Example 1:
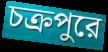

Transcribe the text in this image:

চক্রপুরে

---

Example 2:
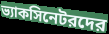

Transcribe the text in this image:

ভ্যাকসিনেটরদের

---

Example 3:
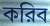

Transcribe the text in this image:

করিব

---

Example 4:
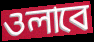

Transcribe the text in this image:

ওলাবে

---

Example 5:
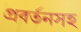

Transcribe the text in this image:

প্রবর্তনসহ